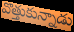
వొత్తుకున్నాడు